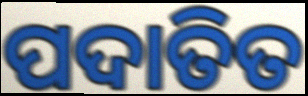
ପଦାତିତ